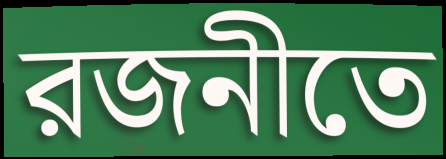
রজনীতে